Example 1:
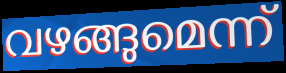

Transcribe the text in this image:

വഴങ്ങുമെന്ന്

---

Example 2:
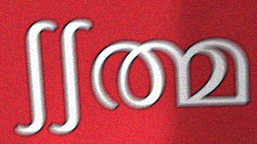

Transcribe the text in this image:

ഽഽത്മ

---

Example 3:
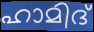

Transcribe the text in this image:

ഹാമിദ്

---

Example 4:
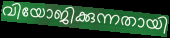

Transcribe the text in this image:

വിയോജിക്കുന്നതായി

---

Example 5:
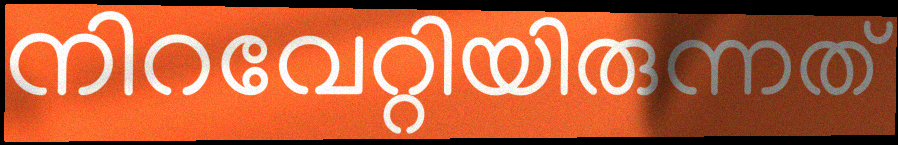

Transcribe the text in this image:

നിറവേറ്റിയിരുന്നത്